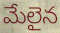
మేలైన